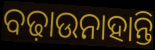
ବଢ଼ାଉନାହାନ୍ତି